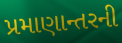
પ્રમાણાન્તરની